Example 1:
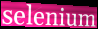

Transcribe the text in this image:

selenium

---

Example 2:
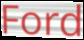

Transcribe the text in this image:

Ford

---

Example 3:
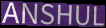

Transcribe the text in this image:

ANSHUL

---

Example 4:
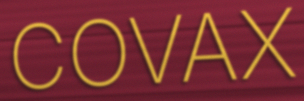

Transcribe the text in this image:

COVAX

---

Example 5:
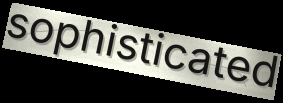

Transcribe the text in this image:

sophisticated